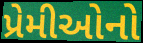
પ્રેમીઓનો